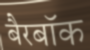
बैरबॉक